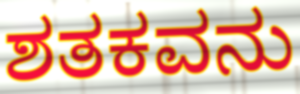
ಶತಕವನು